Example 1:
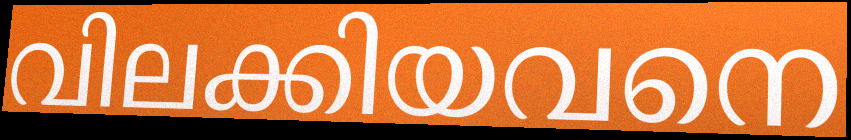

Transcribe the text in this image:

വിലക്കിയവനെ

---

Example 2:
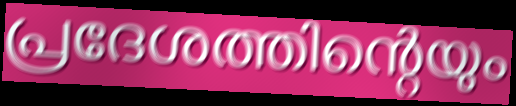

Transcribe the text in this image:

പ്രദേശത്തിന്റെയും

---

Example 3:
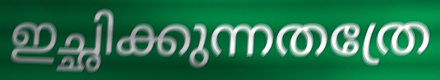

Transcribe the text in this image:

ഇച്ഛിക്കുന്നതത്രേ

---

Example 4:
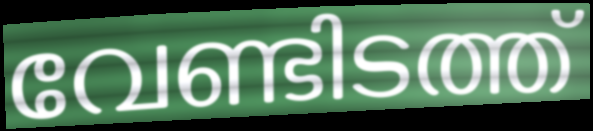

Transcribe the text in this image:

വേണ്ടിടത്ത്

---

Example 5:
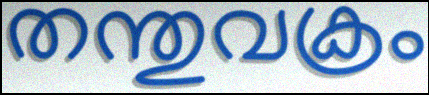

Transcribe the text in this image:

തന്തുവക്രം